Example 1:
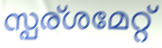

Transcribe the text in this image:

സ്പര്ശമേറ്റ്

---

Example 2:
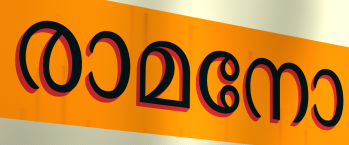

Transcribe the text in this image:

രാമനോ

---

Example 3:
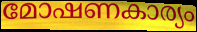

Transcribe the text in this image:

മോഷണകാര്യം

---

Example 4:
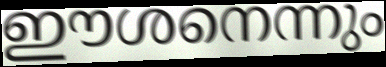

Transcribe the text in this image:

ഈശനെന്നും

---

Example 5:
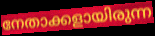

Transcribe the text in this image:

നേതാക്കളായിരുന്ന